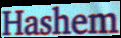
Hashem